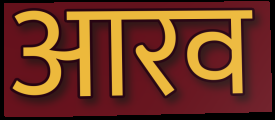
आरव